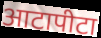
आटापीटा